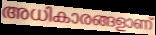
അധികാരങ്ങളാണ്